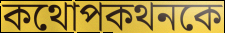
কথোপকথনকে